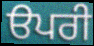
ੳਪਰੀ